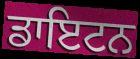
ਡਾਇਟਨ